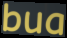
bua